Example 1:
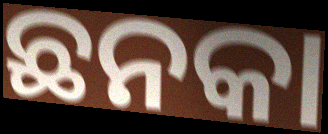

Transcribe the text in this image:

ଛନକା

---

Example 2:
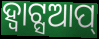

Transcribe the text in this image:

ହ୍ୱାଟ୍ସଆପ୍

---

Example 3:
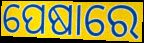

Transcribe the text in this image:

ପେଷାରେ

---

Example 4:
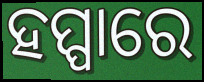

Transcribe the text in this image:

ହପ୍ପାରେ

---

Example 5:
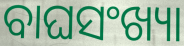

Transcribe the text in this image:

ବାଘସଂଖ୍ୟା